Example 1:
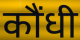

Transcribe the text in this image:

कौंधी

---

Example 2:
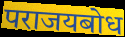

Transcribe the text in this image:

पराजयबोध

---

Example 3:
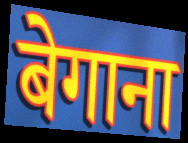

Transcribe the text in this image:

बेगाना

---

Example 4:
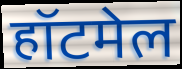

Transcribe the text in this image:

हॉटमेल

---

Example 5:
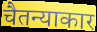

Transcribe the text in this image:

चैतन्याकार